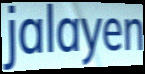
jalayen